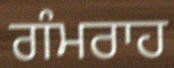
ਗੰਮਰਾਹ